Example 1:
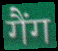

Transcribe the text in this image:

गैंग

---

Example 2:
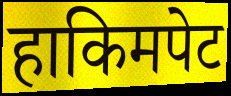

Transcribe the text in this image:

हाकिमपेट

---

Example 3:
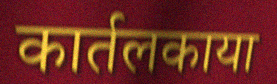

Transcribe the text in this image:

कार्तलकाया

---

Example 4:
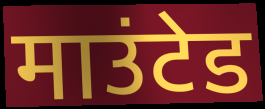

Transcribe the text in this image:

माउंटेड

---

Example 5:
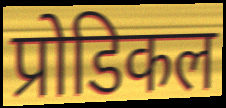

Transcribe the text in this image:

प्रोडिकल